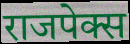
राजपेक्स